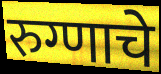
रुग्णाचे